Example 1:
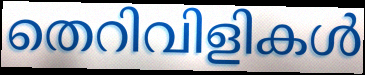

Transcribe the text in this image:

തെറിവിളികൾ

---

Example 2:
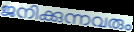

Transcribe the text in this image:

ജനിക്കുന്നവരും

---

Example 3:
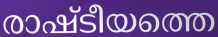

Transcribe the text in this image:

രാഷ്ടീയത്തെ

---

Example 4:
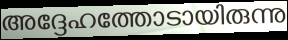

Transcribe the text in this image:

അദ്ദേഹത്തോടായിരുന്നു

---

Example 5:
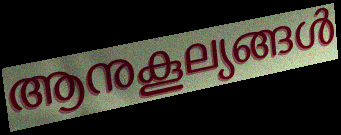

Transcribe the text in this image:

ആനുകൂല്യങ്ങൾ